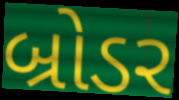
બ્રોડર